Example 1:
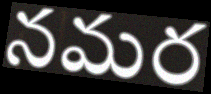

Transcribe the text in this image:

నమర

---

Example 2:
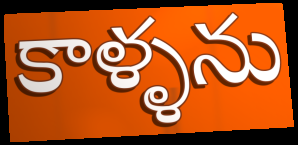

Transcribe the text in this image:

కాళ్ళను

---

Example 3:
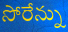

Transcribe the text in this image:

సోరేన్ను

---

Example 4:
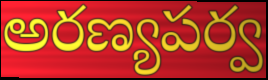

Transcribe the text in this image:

అరణ్యపర్వ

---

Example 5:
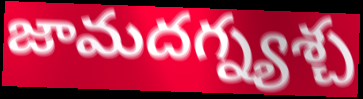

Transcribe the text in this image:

జామదగ్న్యశ్చ